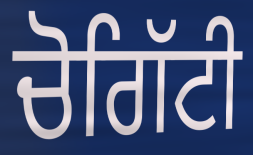
ਚੋਗਿੱਟੀ